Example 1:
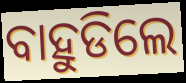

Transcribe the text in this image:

ବାହୁଡିଲେ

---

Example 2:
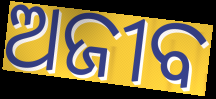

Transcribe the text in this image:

ଅଜୀବ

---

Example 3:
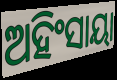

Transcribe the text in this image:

ଅହିଂସାୟା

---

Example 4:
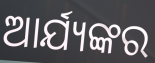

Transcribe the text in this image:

ଆର୍ଯ୍ୟଙ୍କର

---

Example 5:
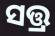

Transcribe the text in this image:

ସତ୍ତ୍ର